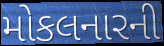
મોકલનારની